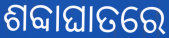
ଶବ୍ଦାଘାତରେ